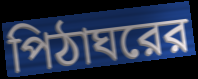
পিঠাঘরের